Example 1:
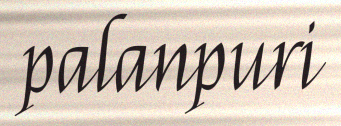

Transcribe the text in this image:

palanpuri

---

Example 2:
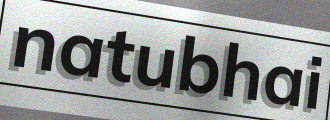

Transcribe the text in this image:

natubhai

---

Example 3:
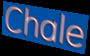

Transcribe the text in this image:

Chale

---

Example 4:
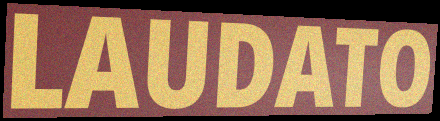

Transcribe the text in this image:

LAUDATO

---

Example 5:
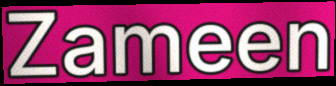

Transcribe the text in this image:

Zameen